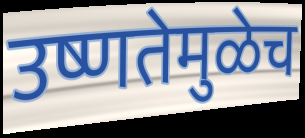
उष्णतेमुळेच